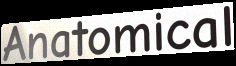
Anatomical